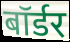
बॉर्डर